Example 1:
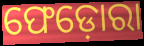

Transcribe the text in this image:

ଫେଡ଼ୋରା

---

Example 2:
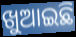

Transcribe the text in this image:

ଖୁଆଇଛି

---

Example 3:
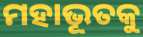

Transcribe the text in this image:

ମହାଭୂତକୁ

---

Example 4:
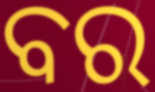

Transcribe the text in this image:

ବର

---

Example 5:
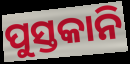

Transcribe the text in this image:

ପୁସ୍ତକାନି